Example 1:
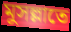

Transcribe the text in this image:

মুসল্লাতে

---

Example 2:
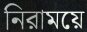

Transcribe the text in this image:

নিরাময়ে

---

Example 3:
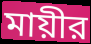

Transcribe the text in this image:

মায়ীর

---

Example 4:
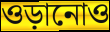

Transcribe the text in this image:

ওড়ানোও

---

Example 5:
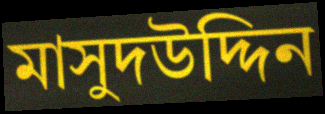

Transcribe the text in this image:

মাসুদউদ্দিন